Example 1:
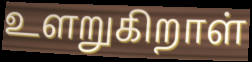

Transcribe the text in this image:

உளறுகிறாள்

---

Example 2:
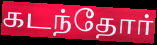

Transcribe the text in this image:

கடந்தோர்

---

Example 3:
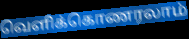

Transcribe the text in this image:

வெளிக்கொணரலாம்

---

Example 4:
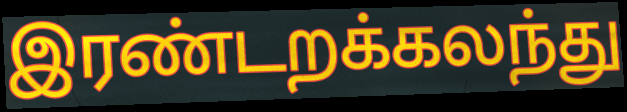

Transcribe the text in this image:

இரண்டறக்கலந்து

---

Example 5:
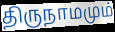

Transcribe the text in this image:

திருநாமமும்